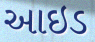
આઇડ